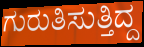
ಗುರುತಿಸುತ್ತಿದ್ದ